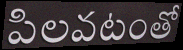
పిలవటంతో